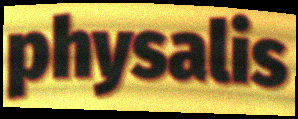
physalis